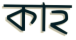
কাহ